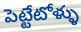
పెట్టేటోళ్ళు